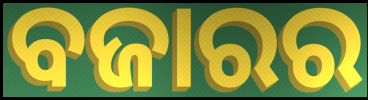
ବଜାରର